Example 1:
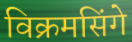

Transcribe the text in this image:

विक्रमसिंगे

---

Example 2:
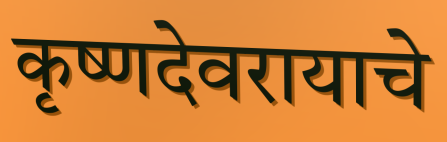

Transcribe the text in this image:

कृष्णदेवरायाचे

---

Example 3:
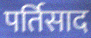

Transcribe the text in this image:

पर्तिसाद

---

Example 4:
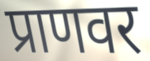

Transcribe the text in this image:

प्राणवर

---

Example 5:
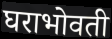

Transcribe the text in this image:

घराभोवती